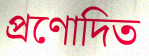
প্ৰণোদিত